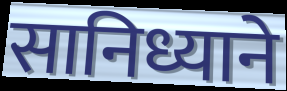
सानिध्याने